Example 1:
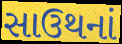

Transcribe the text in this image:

સાઉથનાં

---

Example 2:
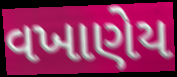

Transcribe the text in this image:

વખાણેય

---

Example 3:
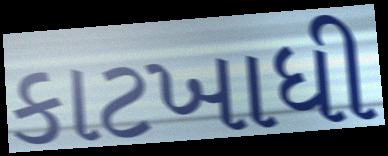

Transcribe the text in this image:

કાટખાધી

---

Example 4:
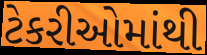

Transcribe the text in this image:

ટેકરીઓમાંથી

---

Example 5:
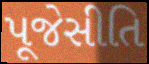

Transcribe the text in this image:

પૂજેસીતિ